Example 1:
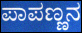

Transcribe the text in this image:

ಪಾಪಣ್ಣನ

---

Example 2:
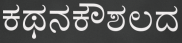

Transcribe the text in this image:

ಕಥನಕೌಶಲದ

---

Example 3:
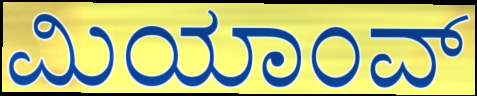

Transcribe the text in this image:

ಮಿಯಾಂವ್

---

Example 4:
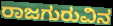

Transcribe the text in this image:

ರಾಜಗುರುವಿನ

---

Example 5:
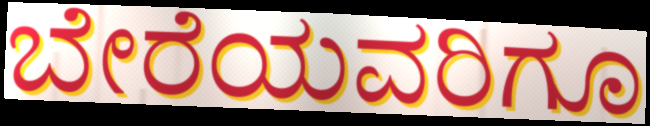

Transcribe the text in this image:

ಬೇರೆಯವರಿಗೂ